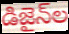
డిజైన్‌ల